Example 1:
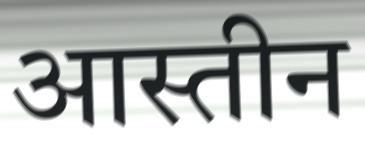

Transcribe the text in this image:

आस्तीन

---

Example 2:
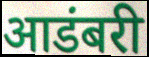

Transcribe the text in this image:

आडंबरी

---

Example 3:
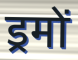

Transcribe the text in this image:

ड्रमों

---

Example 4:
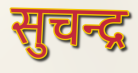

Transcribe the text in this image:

सुचन्द्र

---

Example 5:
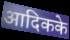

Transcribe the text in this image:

आदिकके